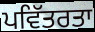
ਪਵਿੱਤਰਤਾ